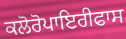
ਕਲੋਰੋਪਾਇਰੀਫਾਸ